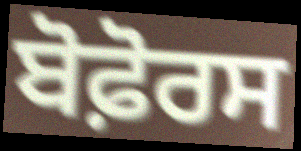
ਬੋਫ਼ੋਰਸ